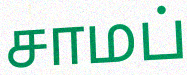
சாமப்